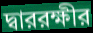
দ্বাররক্ষীর